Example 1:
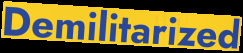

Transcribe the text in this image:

Demilitarized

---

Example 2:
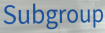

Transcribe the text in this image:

Subgroup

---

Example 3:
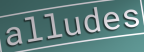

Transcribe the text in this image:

alludes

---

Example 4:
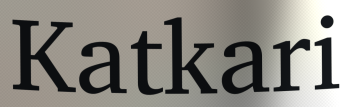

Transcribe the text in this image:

Katkari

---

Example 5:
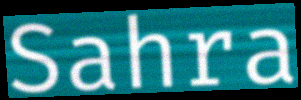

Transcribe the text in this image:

Sahra